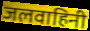
जलवाहिनी